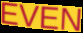
EVEN